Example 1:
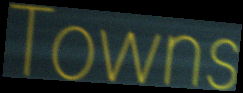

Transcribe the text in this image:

Towns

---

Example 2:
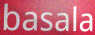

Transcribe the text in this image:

basala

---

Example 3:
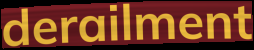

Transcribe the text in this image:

derailment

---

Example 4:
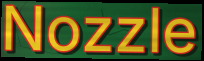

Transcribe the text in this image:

Nozzle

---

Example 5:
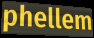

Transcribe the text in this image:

phellem